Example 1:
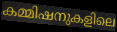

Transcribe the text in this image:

കമ്മിഷനുകളിലെ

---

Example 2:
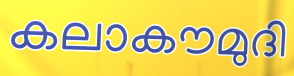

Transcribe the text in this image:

കലാകൗമുദി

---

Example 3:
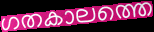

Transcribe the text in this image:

ഗതകാലത്തെ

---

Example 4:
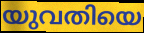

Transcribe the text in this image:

യുവതിയെ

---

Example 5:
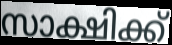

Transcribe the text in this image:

സാക്ഷിക്ക്